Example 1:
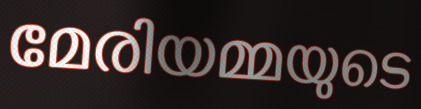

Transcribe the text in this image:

മേരിയമ്മയുടെ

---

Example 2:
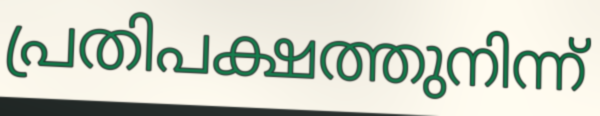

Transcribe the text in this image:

പ്രതിപക്ഷത്തുനിന്ന്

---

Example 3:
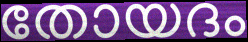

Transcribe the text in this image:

തോയദം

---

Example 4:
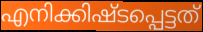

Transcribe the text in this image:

എനിക്കിഷ്ടപ്പെട്ടത്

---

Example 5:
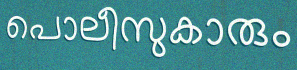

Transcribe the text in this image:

പൊലീസുകാരും